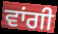
ਵਾਂਗੀ